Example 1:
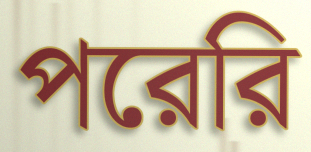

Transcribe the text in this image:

পরেরি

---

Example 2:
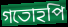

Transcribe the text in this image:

গতোহপি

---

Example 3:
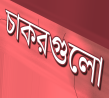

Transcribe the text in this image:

চাকরগুলো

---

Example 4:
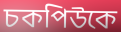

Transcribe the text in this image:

চকপিউকে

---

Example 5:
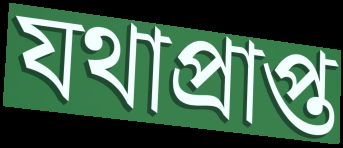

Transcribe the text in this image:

যথাপ্রাপ্ত